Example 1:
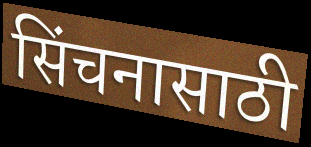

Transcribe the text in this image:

सिंचनासाठी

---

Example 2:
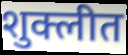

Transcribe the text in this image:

शुक्लीत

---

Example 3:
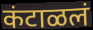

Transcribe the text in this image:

कंटाळलं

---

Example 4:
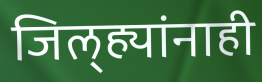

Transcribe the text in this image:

जिल्ह्यांनाही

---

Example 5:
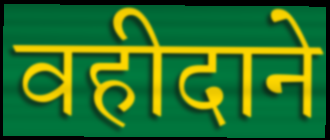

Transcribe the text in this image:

वहीदाने